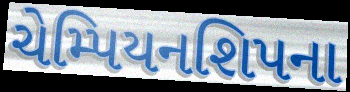
ચેમ્પિયનશિપના